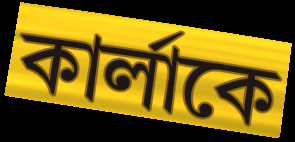
কার্লাকে